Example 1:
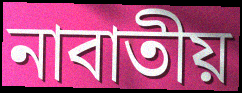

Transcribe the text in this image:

নাবাতীয়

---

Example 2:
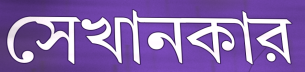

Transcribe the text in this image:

সেখানকার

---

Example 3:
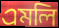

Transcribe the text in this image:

এমলি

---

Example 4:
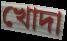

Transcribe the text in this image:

খোদা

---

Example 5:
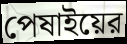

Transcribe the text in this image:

পেষাইয়ের